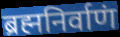
ब्रह्मनिर्वाणं